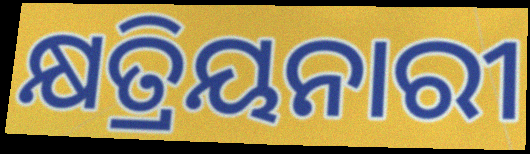
କ୍ଷତ୍ରିୟନାରୀ